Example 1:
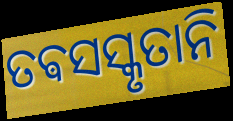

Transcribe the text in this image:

ତଵସସ୍କୃତାନି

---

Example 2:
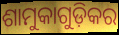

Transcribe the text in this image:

ଶାମୁକାଗୁଡ଼ିକର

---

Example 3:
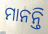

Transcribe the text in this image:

ମାନନ୍ତି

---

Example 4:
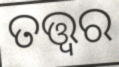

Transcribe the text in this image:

ତତ୍ତ୍ଵର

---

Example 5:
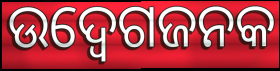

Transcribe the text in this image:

ଉଦ୍ବେଗଜନକ